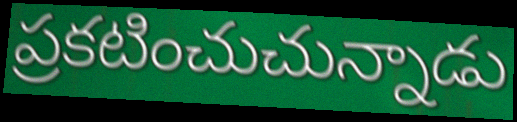
ప్రకటించుచున్నాడు